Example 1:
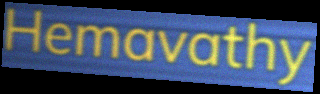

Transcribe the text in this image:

Hemavathy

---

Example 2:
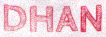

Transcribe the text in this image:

DHAN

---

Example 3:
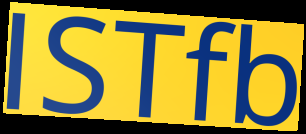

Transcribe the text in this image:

ISTfb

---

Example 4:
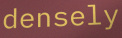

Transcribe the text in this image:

densely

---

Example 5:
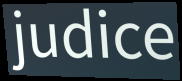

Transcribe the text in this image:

judice